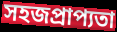
সহজপ্রাপ্যতা